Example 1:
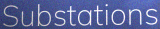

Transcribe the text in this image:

Substations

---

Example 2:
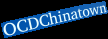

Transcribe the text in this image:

OCDChinatown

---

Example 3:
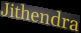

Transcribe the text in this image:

Jithendra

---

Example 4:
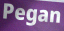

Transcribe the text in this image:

Pegan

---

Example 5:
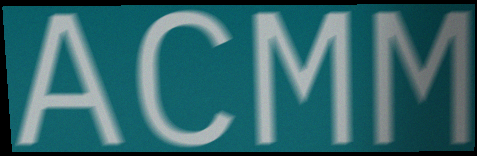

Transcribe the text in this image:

ACMM